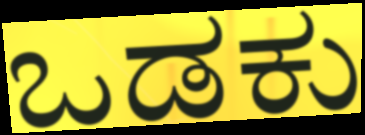
ಒಡಕು